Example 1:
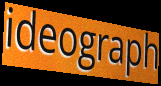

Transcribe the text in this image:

ideograph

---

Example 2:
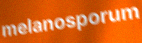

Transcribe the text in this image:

melanosporum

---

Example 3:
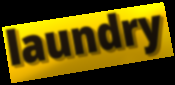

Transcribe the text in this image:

laundry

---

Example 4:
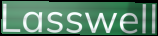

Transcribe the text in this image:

Lasswell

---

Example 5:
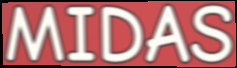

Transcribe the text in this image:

MIDAS